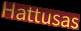
Hattusas